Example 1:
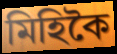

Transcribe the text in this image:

মিহিকৈ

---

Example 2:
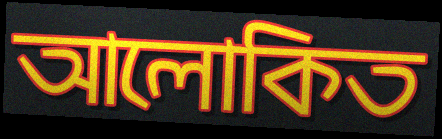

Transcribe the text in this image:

আলোকিত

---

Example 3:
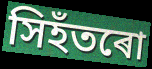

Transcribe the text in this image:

সিহঁতৰো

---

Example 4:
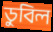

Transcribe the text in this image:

ডুবিল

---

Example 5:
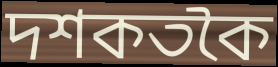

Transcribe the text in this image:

দশকতকৈ